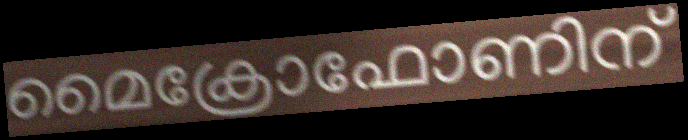
മൈക്രോഫോണിന്